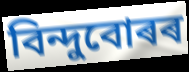
বিন্দুবোৰৰ